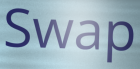
Swap